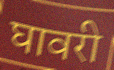
घावरी